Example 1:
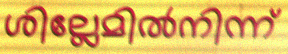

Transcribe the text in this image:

ശില്ലേമിൽനിന്ന്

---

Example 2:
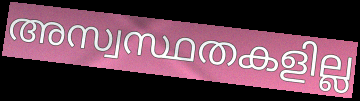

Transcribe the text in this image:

അസ്വസ്ഥതകളില്ല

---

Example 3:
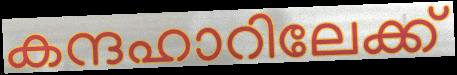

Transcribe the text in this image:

കന്ദഹാറിലേക്ക്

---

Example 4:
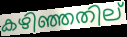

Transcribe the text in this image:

കഴിഞ്ഞതില്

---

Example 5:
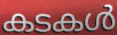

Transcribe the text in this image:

കടകൾ